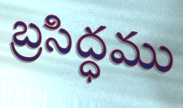
బ్రసిద్ధము